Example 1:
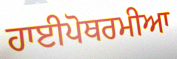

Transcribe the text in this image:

ਹਾਈਪੋਥਰਮੀਆ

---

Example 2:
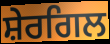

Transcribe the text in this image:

ਸ਼ੇਰਗਿਲ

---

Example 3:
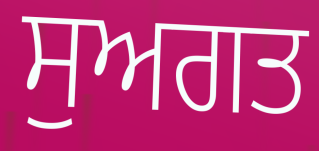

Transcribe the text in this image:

ਸੁਅਗਤ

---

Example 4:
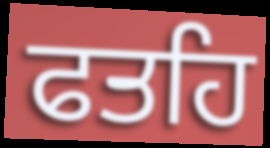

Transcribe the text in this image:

ਫਤਹਿ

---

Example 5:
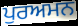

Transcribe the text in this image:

ਪੁਰਅਮਨ